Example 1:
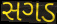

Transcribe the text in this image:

સગડ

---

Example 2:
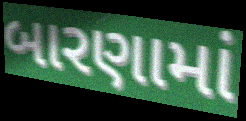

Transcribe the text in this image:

બારણામાં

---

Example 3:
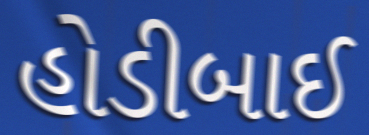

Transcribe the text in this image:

હોડીબાઈ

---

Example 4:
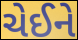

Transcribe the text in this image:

ચેઈને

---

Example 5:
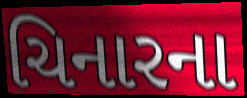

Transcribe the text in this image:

ચિનારના